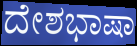
ದೇಶಭಾಷಾ